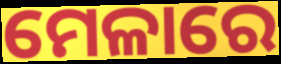
ମେଳାରେ